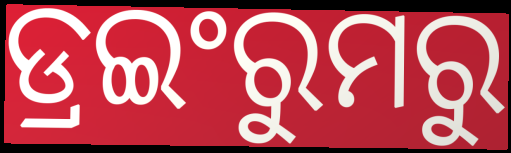
ଡ୍ରଇଂରୁମରୁ